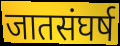
जातसंघर्ष